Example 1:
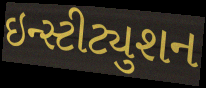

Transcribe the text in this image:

ઇન્સ્ટીટ્યુશન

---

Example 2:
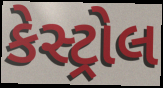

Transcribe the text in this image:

કેસ્ટ્રોલ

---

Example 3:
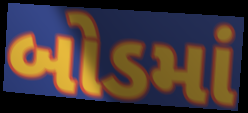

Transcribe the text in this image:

બોડમાં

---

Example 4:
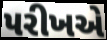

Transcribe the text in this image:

પરીખએ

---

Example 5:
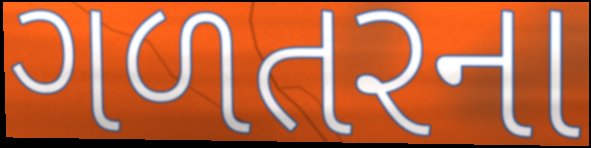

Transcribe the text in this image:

ગળતરના